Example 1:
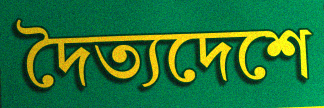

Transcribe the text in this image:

দৈত্যদেশে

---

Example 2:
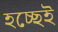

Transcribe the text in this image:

হচ্ছেই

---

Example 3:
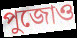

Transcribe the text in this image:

পুজোও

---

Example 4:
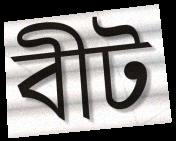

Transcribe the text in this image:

বীট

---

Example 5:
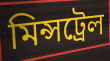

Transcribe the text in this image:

মিন্সট্রেল